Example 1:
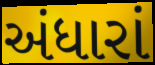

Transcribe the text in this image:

અંધારાં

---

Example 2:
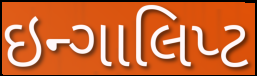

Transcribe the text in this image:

ઇન્ગાલિપ્ટ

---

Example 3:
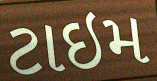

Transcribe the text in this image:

ટાઇમ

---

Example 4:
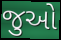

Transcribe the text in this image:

જુઓ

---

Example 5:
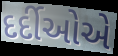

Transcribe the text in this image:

દર્દીઓએ